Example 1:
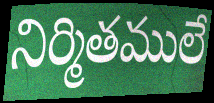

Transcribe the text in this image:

నిర్మితములే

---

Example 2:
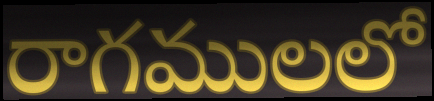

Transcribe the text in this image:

రాగములలో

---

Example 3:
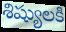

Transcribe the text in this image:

శిష్యులకి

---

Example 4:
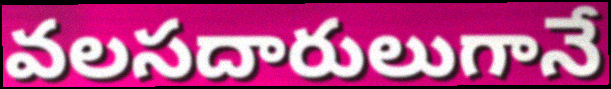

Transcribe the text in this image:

వలసదారులుగానే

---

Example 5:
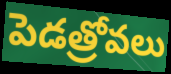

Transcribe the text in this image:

పెడత్రోవలు